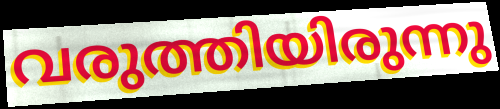
വരുത്തിയിരുന്നു